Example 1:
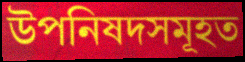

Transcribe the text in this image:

উপনিষদসমূহত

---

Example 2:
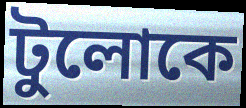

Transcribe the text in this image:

টুলোকে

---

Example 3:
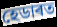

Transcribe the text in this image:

হেডাৰত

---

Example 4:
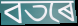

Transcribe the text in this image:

বতৰে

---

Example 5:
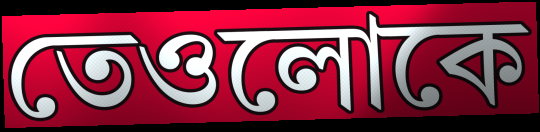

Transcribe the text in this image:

তেওলোকে